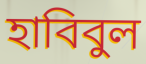
হাবিবুল